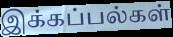
இக்கப்பல்கள்